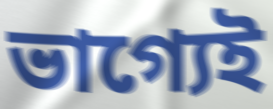
ভাগ্যেই